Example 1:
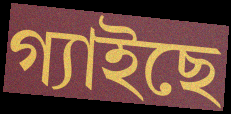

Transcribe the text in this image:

গ্যাইছে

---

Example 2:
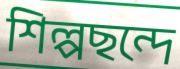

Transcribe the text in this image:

শিল্পছন্দে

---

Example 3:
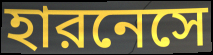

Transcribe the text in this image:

হারনেসে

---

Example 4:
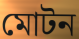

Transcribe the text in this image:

মোটন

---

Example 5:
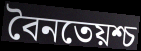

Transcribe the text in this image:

বৈনতেয়শ্চ